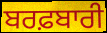
ਬਰਫ਼ਬਾਰੀ